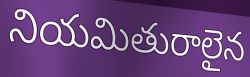
నియమితురాలైన